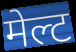
मेल्ट